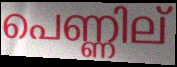
പെണ്ണില്